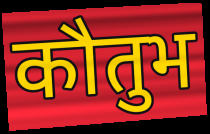
कौतुभ